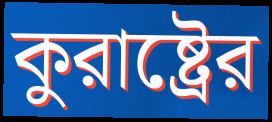
কুরাষ্ট্রের